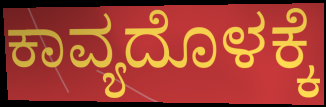
ಕಾವ್ಯದೊಳಕ್ಕೆ